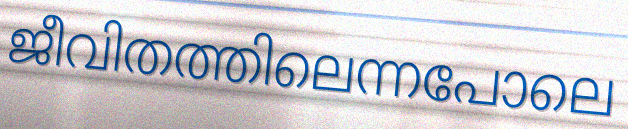
ജീവിതത്തിലെന്നപോലെ